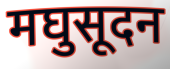
मघुसूदन